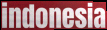
indonesia